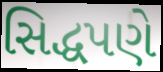
સિદ્ધપણે